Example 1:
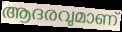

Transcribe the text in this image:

ആദരവുമാണ്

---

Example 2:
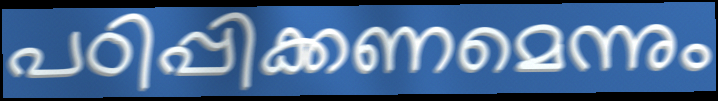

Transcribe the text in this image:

പഠിപ്പിക്കണമെന്നും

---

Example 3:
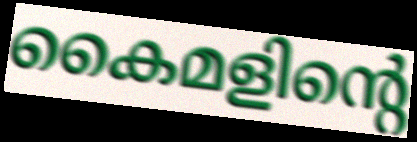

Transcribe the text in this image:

കൈമളിന്റെ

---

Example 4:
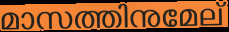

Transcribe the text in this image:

മാസത്തിനുമേല്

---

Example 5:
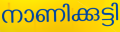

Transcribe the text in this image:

നാണിക്കുട്ടി